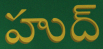
హుద్